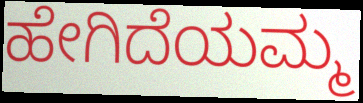
ಹೇಗಿದೆಯಮ್ಮ